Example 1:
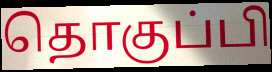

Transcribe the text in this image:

தொகுப்பி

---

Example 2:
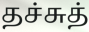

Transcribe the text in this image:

தச்சுத்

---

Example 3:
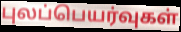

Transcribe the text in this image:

புலப்பெயர்வுகள்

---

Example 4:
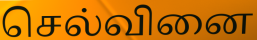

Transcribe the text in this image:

செல்வினை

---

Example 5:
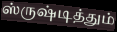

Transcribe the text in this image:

ஸ்ருஷ்டித்தும்